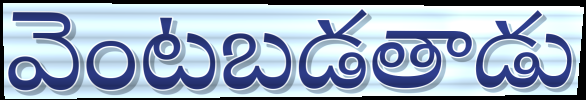
వెంటబడతాడు